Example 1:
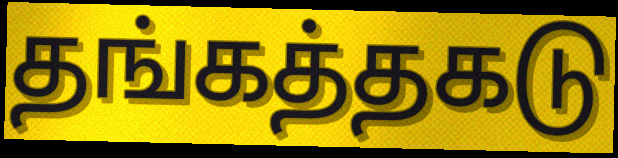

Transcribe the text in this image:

தங்கத்தகடு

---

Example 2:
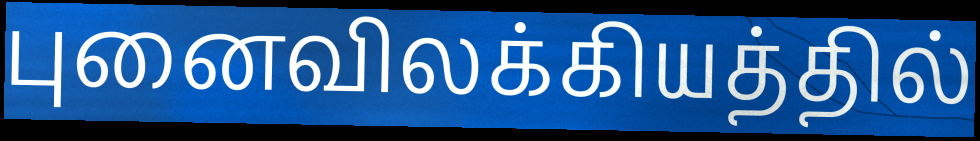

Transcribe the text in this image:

புனைவிலக்கியத்தில்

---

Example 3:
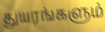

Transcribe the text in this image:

துயரங்களும்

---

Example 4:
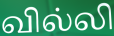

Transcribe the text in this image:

வில்லி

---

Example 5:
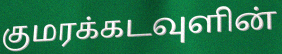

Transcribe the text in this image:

குமரக்கடவுளின்